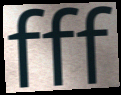
fff